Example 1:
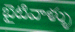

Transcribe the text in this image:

బైటివాళ్ళు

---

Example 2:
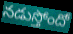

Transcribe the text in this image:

నడుస్తోందో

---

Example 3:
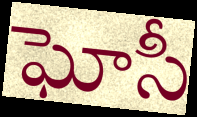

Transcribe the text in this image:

ఘోసీ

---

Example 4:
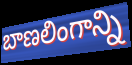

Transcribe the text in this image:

బాణలింగాన్ని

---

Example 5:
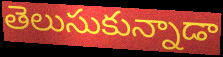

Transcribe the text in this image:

తెలుసుకున్నాడా